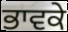
ਭਾਵਕੇ